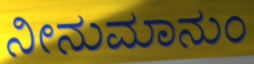
ನೀನುಮಾನುಂ